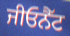
ਜੀਓਨੈੱਟ